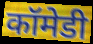
कॉमेडी